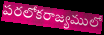
పరలోకరాజ్యములో